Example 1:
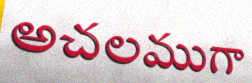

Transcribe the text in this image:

అచలముగా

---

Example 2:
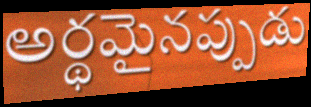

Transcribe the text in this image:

అర్థమైనప్పుడు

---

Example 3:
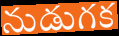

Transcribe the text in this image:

నుడుగక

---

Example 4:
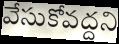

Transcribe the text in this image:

వేసుకోవద్దని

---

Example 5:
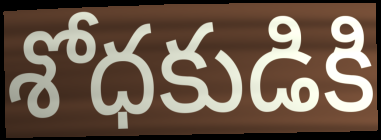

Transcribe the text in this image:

శోధకుడికి